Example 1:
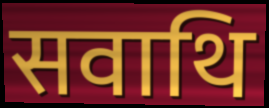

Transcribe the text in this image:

सवाथि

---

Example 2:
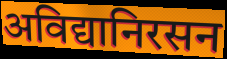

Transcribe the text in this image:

अविद्यानिरसन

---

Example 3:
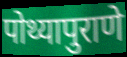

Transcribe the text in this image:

पोथ्यापुराणे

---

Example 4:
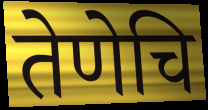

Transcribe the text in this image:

तेणेचि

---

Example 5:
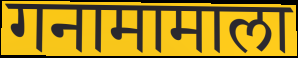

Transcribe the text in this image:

गनामामाला